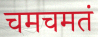
चमचमतं